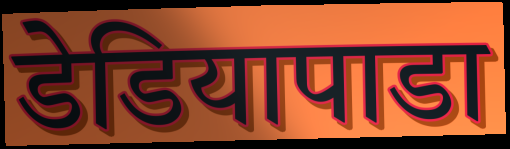
डेडियापाडा